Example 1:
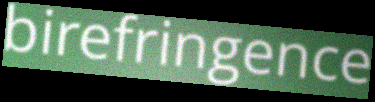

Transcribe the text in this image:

birefringence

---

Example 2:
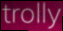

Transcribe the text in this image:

trolly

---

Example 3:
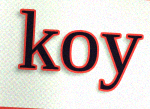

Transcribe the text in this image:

koy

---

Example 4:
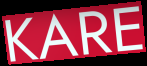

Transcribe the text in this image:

KARE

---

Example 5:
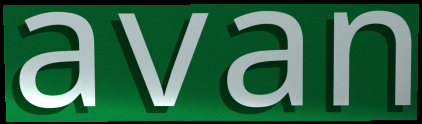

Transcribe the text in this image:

avan